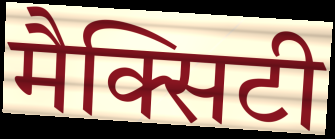
मैक्सिटी